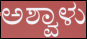
ಅಶ್ವಾಳು